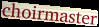
choirmaster